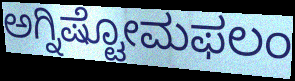
ಅಗ್ನಿಷ್ಟೋಮಫಲಂ